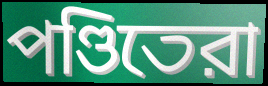
পণ্ডিতেরা